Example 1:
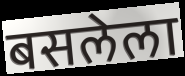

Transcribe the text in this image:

बसलेला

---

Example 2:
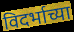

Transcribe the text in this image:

विदर्भाच्या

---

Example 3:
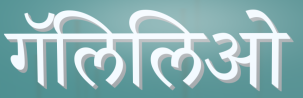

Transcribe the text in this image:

गॅलिलिओ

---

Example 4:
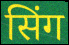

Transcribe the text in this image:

सिंग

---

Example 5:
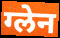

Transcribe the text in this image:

ग्लेन